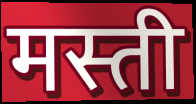
मस्ती